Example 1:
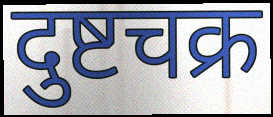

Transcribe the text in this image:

दुष्टचक्र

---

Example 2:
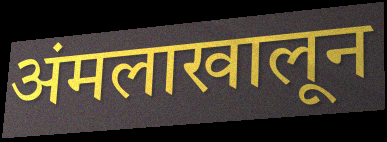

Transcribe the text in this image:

अंमलाखालून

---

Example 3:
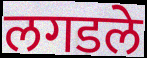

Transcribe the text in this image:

लगडले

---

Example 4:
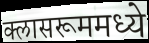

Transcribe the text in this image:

क्लासरूममध्ये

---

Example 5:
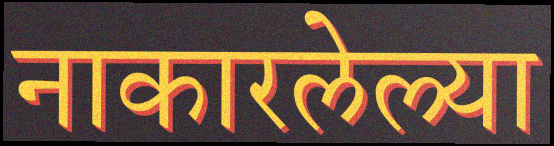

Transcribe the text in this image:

नाकारलेल्या